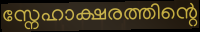
സ്നേഹാക്ഷരത്തിന്റെ